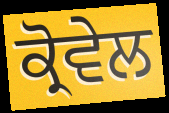
ਕ੍ਰੋਵੇਲ